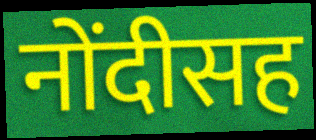
नोंदीसह